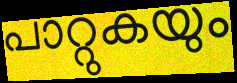
പാറ്റുകയും